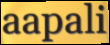
aapali